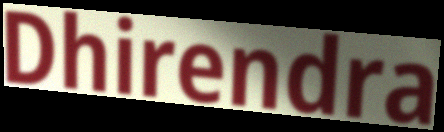
Dhirendra